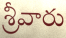
శ్రీవారు